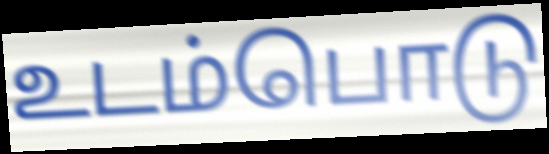
உடம்பொடு